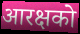
आरक्षको